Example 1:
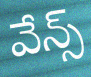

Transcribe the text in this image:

వేన్స్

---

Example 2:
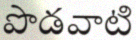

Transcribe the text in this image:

పొడవాటి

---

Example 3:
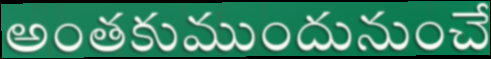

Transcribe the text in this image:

అంతకుముందునుంచే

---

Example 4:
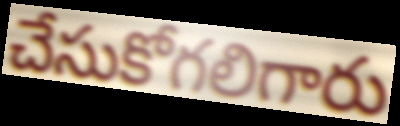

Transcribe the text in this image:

చేసుకోగలిగారు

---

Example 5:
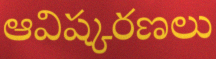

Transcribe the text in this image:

ఆవిష్కరణలు